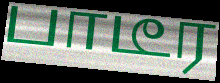
பாடீர